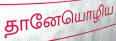
தானேயொழிய